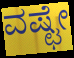
ವಷ್ಟೇ